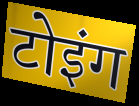
टोइंग